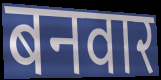
बनवार